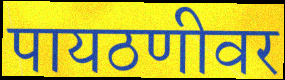
पायठणीवर